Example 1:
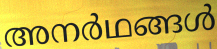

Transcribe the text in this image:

അനർഥങ്ങൾ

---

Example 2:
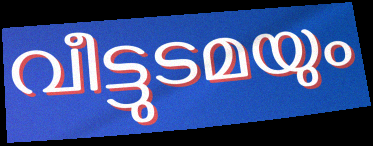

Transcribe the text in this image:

വീട്ടുടമയും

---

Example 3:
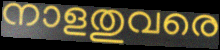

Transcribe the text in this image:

നാളതുവരെ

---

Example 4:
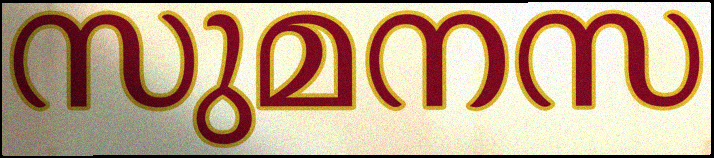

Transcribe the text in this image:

സുമനസ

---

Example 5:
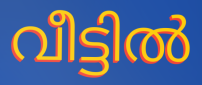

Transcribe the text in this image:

വീട്ടിൽ